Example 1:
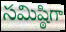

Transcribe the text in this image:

సమిష్ఠిగా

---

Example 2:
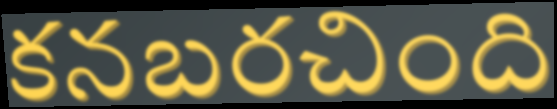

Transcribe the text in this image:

కనబరచింది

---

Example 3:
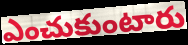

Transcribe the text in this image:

ఎంచుకుంటారు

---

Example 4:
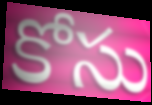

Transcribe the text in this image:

కోసు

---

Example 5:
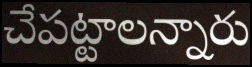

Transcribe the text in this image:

చేపట్టాలన్నారు